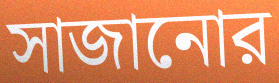
সাজানোর